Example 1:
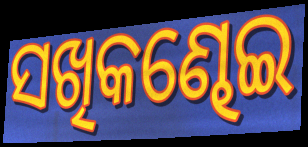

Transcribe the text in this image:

ସଖିକଣ୍ଢେଇ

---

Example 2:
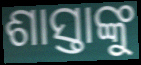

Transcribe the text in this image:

ଶାସ୍ତାଙ୍କୁ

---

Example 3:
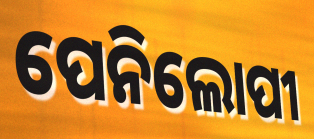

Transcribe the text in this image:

ପେନିଲୋପୀ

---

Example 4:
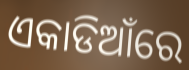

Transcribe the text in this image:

ଏକାଡିଆଁରେ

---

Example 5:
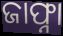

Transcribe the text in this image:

ଜାଫ୍ନା